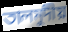
তালমুদীয়